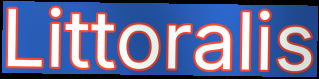
Littoralis